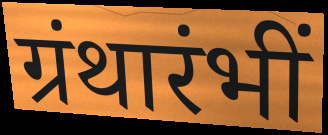
ग्रंथारंभीं